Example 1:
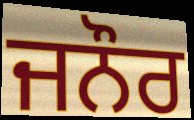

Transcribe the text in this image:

ਜਨੌਰ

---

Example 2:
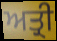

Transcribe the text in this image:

ਅਤ੍ਰੀ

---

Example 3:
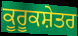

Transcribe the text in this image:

ਕੂਰੂਕਸ਼ੇਤਰ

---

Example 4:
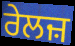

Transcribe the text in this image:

ਰੇਲਜ਼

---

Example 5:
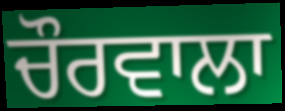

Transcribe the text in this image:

ਚੌਰਵਾਲਾ